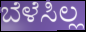
ಬೆಳೆಸಿಲ್ಲ